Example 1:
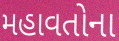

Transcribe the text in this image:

મહાવતોના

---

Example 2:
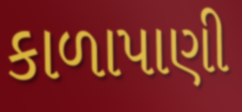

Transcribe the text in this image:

કાળાપાણી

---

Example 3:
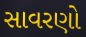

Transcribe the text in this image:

સાવરણો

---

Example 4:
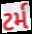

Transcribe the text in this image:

ટર્મ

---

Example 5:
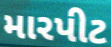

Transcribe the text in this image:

મારપીટ